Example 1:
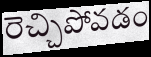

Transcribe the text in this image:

రెచ్చిపోవడం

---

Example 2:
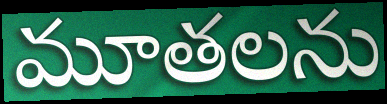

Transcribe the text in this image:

మూతలను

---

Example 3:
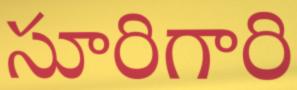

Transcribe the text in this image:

సూరిగారి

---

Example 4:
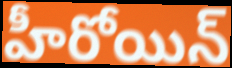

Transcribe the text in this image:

హీరోయిన్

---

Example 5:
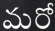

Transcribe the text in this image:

మరో